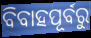
ବିବାହପୂର୍ବରୁ